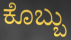
ಕೊಬ್ಬು